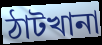
ঠাটখানা